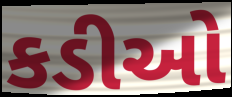
કડીઓ